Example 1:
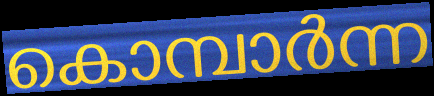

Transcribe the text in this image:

കൊമ്പാർന്ന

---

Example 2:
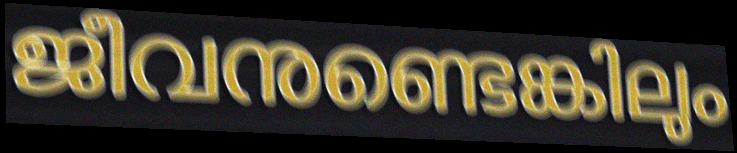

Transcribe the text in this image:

ജീവനുണ്ടെങ്കിലും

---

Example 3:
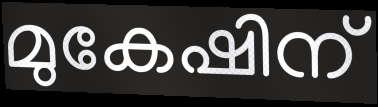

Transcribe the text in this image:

മുകേഷിന്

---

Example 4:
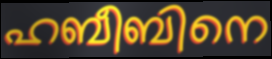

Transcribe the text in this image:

ഹബീബിനെ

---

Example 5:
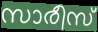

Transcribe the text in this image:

സാരീസ്